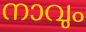
നാവും